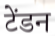
टेंडन